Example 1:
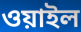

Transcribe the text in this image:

ওয়াইল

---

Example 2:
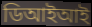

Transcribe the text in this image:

ডিআইআই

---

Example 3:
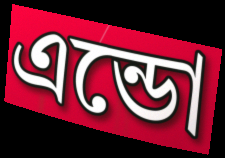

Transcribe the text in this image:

এন্ডো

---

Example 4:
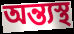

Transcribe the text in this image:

অন্ত্যস্থ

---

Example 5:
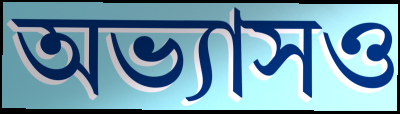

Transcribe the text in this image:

অভ্যাসও